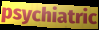
psychiatric